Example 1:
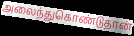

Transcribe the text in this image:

அலைந்துகொண்டுதான்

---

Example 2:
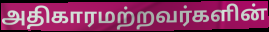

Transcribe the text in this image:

அதிகாரமற்றவர்களின்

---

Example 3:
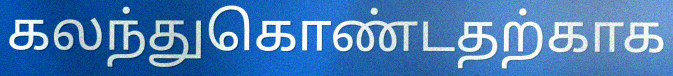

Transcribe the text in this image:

கலந்துகொண்டதற்காக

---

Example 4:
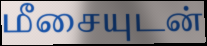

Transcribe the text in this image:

மீசையுடன்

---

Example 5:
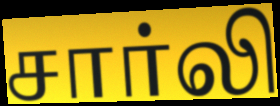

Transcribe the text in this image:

சார்லி